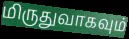
மிருதுவாகவும்